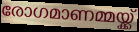
രോഗമാണമ്മയ്ക്ക്